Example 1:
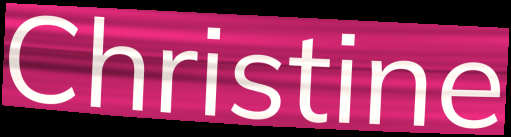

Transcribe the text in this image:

Christine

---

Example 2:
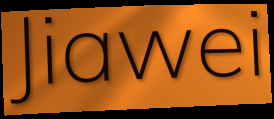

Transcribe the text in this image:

Jiawei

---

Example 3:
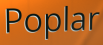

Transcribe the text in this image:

Poplar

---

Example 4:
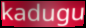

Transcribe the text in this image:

kadugu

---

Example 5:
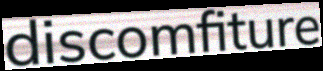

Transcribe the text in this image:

discomfiture